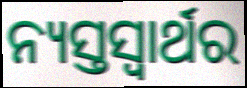
ନ୍ୟସ୍ତସ୍ୱାର୍ଥର